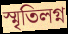
স্মৃতিলগ্ন